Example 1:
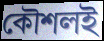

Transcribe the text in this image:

কৌশলই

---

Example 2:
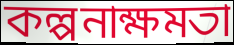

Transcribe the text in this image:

কল্পনাক্ষমতা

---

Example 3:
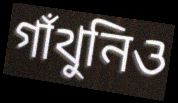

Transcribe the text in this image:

গাঁথুনিও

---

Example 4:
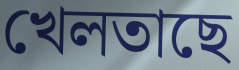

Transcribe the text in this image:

খেলতাছে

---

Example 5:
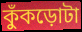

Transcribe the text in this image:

কুঁকড়োটা